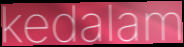
kedalam